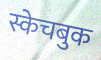
स्केचबुक